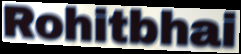
Rohitbhai